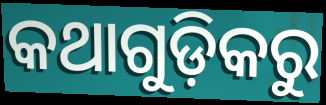
କଥାଗୁଡ଼ିକରୁ